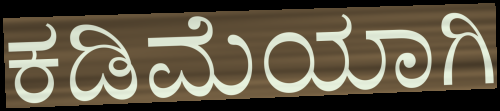
ಕಡಿಮೆಯಾಗಿ